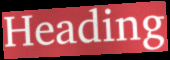
Heading